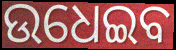
ଉଧେଇବ